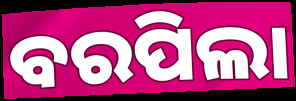
ବରପିଲା